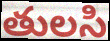
తులసి